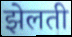
झेलती